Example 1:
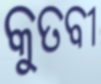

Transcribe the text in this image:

କୁତବୀ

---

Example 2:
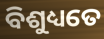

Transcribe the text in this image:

ବିଶୁଧ୍ୟତେ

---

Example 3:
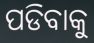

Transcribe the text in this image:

ପଡିବାକୁ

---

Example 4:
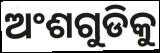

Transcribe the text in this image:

ଅଂଶଗୁଡିକୁ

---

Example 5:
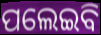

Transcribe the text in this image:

ପଲେଇବି